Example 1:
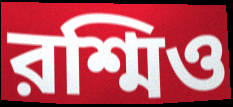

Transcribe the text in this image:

রশ্মিও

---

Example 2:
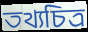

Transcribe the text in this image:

তথ্যচিত্র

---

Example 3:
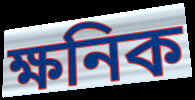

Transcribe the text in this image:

ক্ষনিক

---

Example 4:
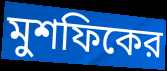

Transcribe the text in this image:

মুশফিকের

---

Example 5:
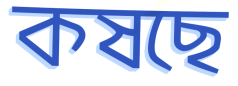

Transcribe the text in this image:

কষছে